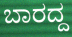
ಬಾರದ್ದ